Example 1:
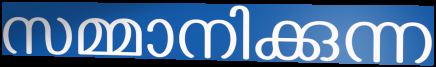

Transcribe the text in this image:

സമ്മാനിക്കുന്ന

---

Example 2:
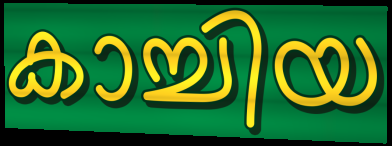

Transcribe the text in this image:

കാച്ചിയ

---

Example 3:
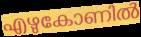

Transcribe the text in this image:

എഴുകോണിൽ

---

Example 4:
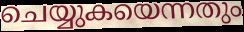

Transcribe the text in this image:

ചെയ്യുകയെന്നതും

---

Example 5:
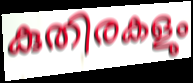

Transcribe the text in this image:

കുതിരകളും